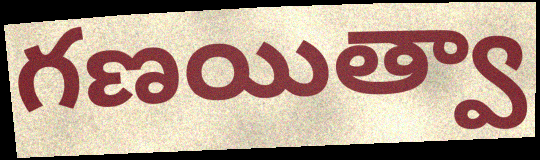
గణయిత్వా